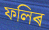
ফলিৰ